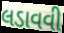
લડાવવી